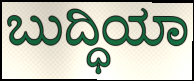
ಬುದ್ಧಿಯಾ